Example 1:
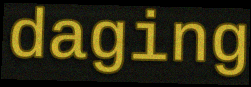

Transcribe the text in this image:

daging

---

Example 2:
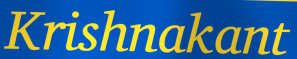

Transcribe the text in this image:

Krishnakant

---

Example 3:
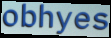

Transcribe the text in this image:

obhyes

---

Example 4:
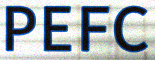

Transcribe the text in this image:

PEFC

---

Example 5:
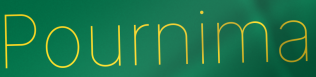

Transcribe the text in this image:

Pournima